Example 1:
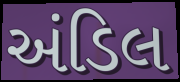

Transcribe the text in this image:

અંડિલ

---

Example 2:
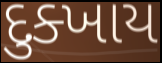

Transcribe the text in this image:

દુક્ખાય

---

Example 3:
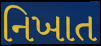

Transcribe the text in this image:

નિખાત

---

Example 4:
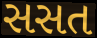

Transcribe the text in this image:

સસત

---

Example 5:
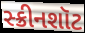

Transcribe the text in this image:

સ્ક્રીનશૉટ